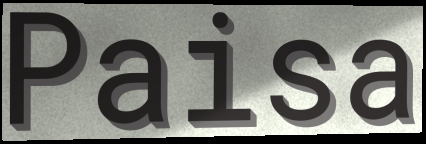
Paisa